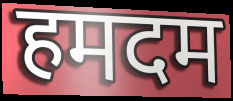
हमदम